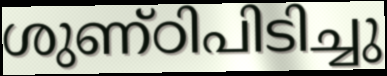
ശുണ്ഠിപിടിച്ചു